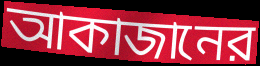
আকাজানের